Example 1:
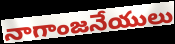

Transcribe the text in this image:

నాగాంజనేయులు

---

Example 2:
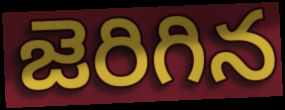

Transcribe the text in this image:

జెరిగిన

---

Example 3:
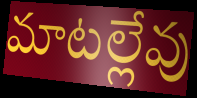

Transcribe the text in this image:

మాటల్లేవు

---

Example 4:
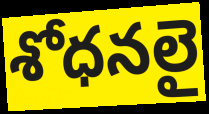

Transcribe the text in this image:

శోధనలై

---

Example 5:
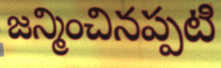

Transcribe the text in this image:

జన్మించినప్పటి